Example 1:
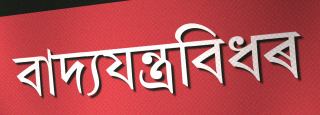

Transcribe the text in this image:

বাদ্যযন্ত্ৰবিধৰ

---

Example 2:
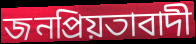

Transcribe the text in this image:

জনপ্ৰিয়তাবাদী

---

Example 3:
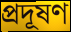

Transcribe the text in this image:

প্ৰদূষণ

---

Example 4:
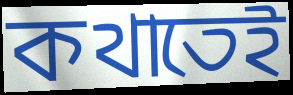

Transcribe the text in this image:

কথাতেই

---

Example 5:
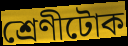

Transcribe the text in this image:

শ্ৰেণীটোক